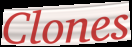
Clones